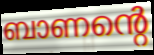
ബാണന്റെ